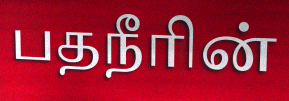
பதநீரின்